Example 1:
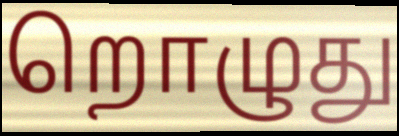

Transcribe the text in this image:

றொழுது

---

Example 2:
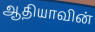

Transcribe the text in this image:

ஆதியாவின்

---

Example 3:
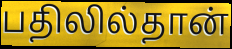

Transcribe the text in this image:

பதிலில்தான்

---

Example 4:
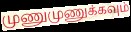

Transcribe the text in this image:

முணுமுணுக்கவும்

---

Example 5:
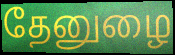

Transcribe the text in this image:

தேனுழை